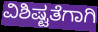
ವಿಶಿಷ್ಟತೆಗಾಗಿ